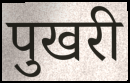
पुखरी